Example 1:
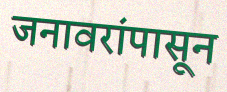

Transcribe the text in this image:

जनावरांपासून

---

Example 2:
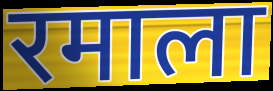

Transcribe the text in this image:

रमाला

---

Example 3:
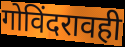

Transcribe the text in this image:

गोविंदरावही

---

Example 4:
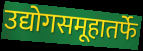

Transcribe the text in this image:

उद्योगसमूहातर्फे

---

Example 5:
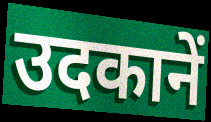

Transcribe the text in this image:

उदकानें